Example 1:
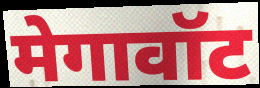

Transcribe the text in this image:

मेगावॉट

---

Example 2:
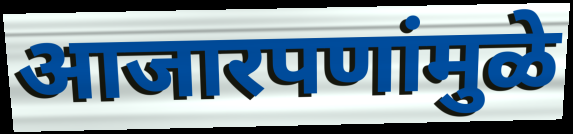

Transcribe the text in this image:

आजारपणांमुळे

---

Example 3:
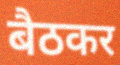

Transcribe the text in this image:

बैठकर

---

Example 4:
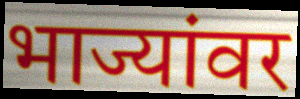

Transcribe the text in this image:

भाज्यांवर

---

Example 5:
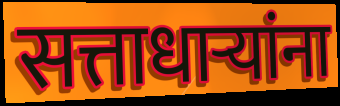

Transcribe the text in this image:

सत्ताधाऱ्यांना